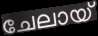
ചേലായ്